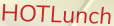
HOTLunch